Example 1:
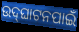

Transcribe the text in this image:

ଉଦ୍‌ଘାଟନପାଇଁ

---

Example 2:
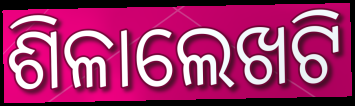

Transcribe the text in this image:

ଶିଳାଲେଖଟି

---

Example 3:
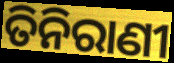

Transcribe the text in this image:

ତିନିରାଣୀ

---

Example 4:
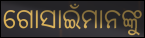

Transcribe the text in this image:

ଗୋସାଇଁମାନଙ୍କୁ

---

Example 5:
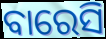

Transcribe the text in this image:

ବାରେସି